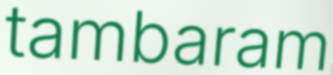
tambaram